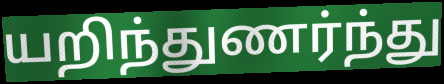
யறிந்துணர்ந்து